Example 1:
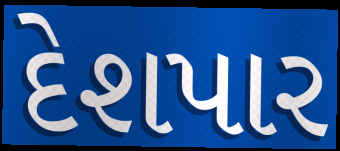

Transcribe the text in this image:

દેશપાર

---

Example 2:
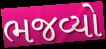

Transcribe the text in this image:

ભજવ્યો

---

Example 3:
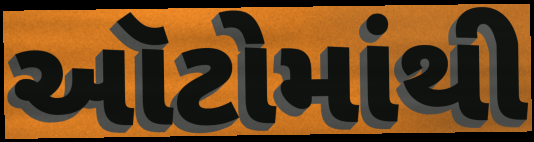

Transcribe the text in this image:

ઑટોમાંથી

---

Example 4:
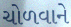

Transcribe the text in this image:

ચોળવાને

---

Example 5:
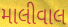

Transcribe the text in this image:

માલીવાલ